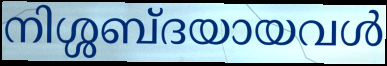
നിശ്ശബ്ദയായവൾ